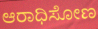
ಆರಾಧಿಸೋಣ